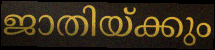
ജാതിയ്ക്കും